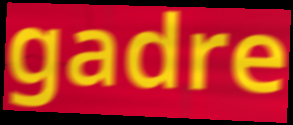
gadre